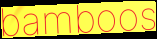
bamboos